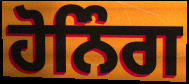
ਹੋਨਿੰਗ